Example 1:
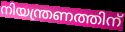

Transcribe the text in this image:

നിയന്ത്രണത്തിന്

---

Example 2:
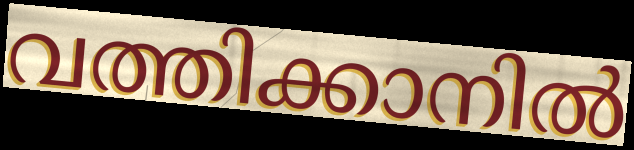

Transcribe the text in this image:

വത്തിക്കാനിൽ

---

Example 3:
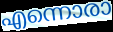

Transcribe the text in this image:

എന്നൊരാ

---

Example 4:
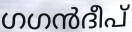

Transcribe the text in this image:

ഗഗൻദീപ്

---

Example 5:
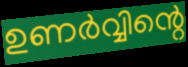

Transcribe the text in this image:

ഉണർവ്വിന്റെ